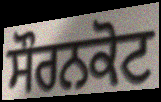
ਸੌਰਨਕੋਟ